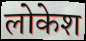
लोकेश